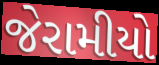
જેરામીયો